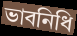
ভাবনিধি